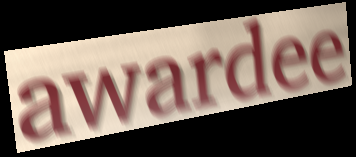
awardee